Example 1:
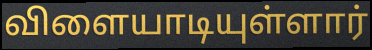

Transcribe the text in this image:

விளையாடியுள்ளார்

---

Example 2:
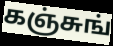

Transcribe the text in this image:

கஞ்சுங்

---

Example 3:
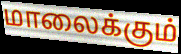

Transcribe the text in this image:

மாலைக்கும்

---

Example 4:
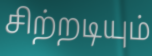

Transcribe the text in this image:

சிற்றடியும்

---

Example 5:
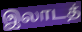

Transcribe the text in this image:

இலாடத்